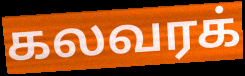
கலவரக்